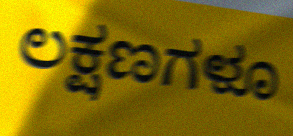
ಲಕ್ಷಣಗಳೂ